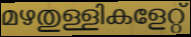
മഴതുള്ളികളേറ്റ്